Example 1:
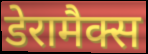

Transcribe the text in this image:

डेरामैक्स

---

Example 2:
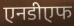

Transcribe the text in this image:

एनडीएफ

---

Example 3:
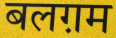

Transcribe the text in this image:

बलग़म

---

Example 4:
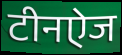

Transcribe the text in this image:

टीनऐज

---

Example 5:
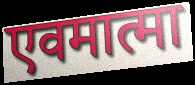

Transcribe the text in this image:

एवमात्मा